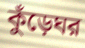
কুঁড়েঘর